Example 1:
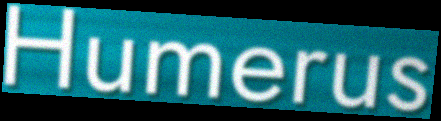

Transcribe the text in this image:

Humerus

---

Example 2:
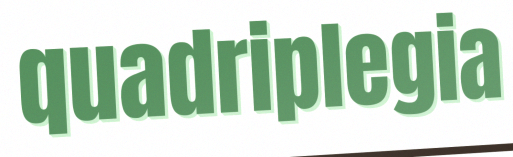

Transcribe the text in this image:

quadriplegia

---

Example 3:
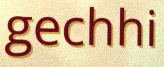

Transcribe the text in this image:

gechhi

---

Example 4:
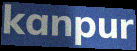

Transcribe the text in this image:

kanpur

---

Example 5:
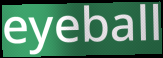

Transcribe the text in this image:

eyeball